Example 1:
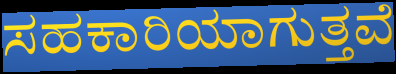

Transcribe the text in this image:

ಸಹಕಾರಿಯಾಗುತ್ತವೆ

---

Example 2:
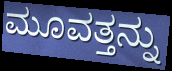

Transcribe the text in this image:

ಮೂವತ್ತನ್ನು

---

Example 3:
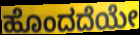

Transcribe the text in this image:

ಹೊಂದದೆಯೇ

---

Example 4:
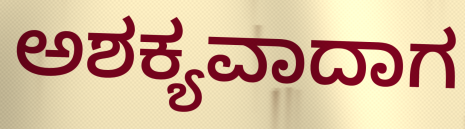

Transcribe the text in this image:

ಅಶಕ್ಯವಾದಾಗ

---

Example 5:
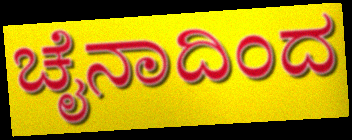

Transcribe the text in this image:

ಚೈನಾದಿಂದ